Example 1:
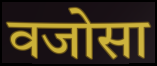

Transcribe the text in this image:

वजोसा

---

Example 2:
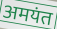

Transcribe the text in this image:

अमयंत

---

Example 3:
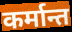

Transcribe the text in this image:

कर्मान्त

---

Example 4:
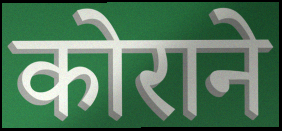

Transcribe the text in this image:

कोराने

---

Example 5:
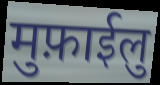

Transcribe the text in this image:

मुफ़ाईलु